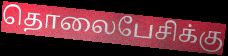
தொலைபேசிக்கு